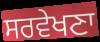
ਸਰਵੇਖਣਾ